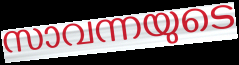
സാവന്നയുടെ